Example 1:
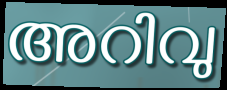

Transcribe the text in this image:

അറിവു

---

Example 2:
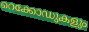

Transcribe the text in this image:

റെക്കോഡുകളും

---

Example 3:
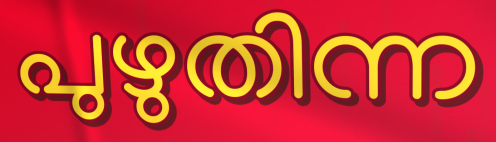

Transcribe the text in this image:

പുഴുതിന്ന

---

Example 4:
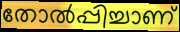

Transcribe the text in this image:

തോൽപ്പിച്ചാണ്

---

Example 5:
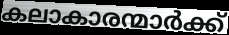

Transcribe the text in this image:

കലാകാരന്മാർക്ക്